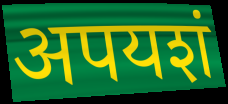
अपयशं